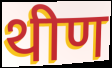
थीण